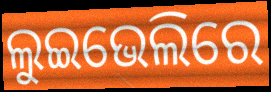
ଲୁଇଭେଲିରେ